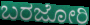
ಬರಜೋರಿ